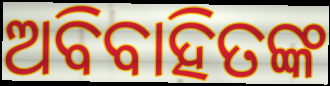
ଅବିବାହିତଙ୍କ